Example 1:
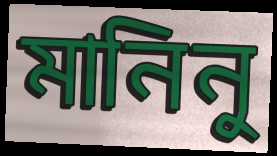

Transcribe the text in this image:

মানিনু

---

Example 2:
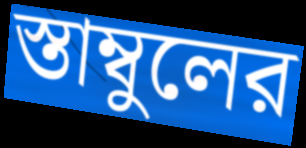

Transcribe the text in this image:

স্তাম্বুলের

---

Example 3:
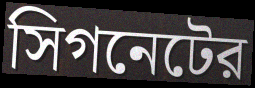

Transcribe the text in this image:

সিগনেটের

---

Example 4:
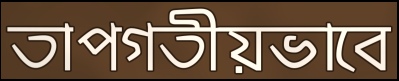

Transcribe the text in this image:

তাপগতীয়ভাবে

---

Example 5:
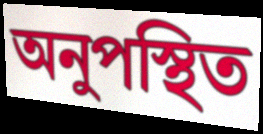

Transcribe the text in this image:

অনুপস্থিত